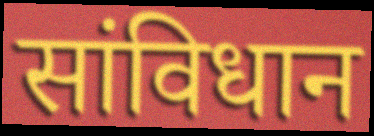
सांविधान